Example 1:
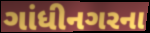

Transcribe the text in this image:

ગાંધીનગરના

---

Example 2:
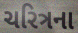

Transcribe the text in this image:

ચરિત્રના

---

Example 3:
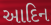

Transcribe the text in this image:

આદિન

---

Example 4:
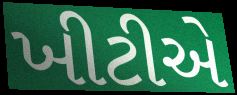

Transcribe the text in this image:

ખીટીએ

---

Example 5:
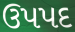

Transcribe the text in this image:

ઉપપદ